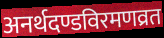
अनर्थदण्डविरमणव्रत